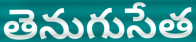
తెనుగుసేత